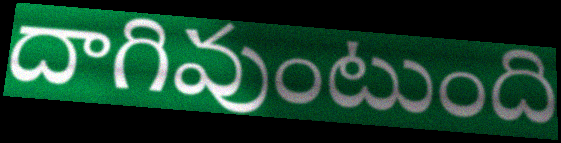
దాగివుంటుంది